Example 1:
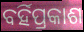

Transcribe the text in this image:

ବର୍ହିପ୍ରକାଶ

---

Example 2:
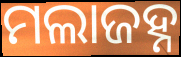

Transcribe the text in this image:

ମଲାଜହ୍ନ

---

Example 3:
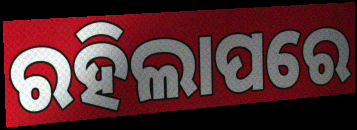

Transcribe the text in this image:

ରହିଲାପରେ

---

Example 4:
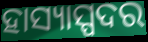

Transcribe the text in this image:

ହାସ୍ୟାସ୍ପଦର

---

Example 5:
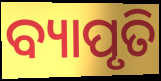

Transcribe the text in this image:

ବ୍ୟାପୃତି